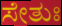
ಸೇತುಃ